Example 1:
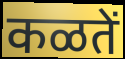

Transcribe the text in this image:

कळतें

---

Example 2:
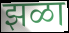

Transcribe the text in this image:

झळा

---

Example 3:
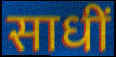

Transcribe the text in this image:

साधीं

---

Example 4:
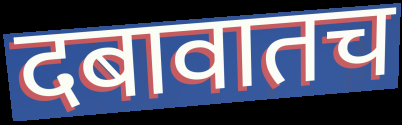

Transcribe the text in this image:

दबावातच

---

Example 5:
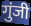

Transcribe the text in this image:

गुंजी